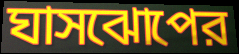
ঘাসঝোপের